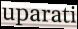
uparati